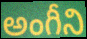
అంగీని